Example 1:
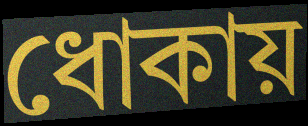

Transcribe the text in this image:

ধোকায়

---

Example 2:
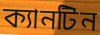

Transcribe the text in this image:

ক্যানটিন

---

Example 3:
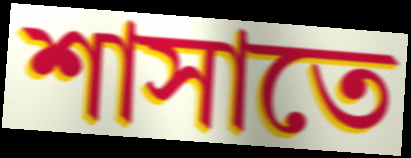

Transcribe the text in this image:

শাসাতে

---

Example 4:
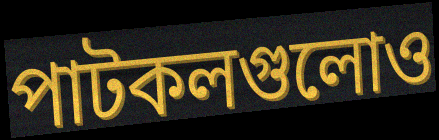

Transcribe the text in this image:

পাটকলগুলোও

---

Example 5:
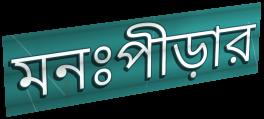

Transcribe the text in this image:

মনঃপীড়ার